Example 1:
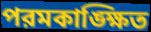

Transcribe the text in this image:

পরমকাঙ্ক্ষিত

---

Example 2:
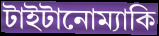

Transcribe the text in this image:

টাইটানোম্যাকি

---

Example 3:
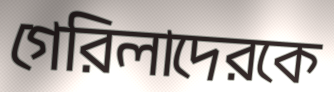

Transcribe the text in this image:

গেরিলাদেরকে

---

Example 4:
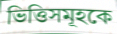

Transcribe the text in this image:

ভিত্তিসমূহকে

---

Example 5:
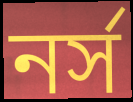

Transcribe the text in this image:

নর্স